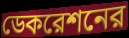
ডেকরেশনের